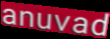
anuvad